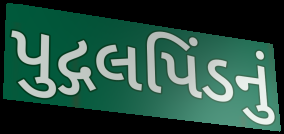
પુદ્ગલપિંડનું